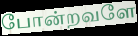
போன்றவளே